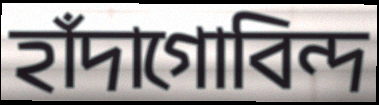
হাঁদাগোবিন্দ